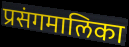
प्रसंगमालिका